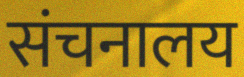
संचनालय